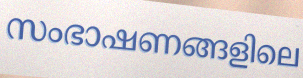
സംഭാഷണങ്ങളിലെ